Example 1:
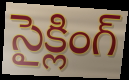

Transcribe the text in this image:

సైక్లింగ్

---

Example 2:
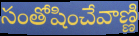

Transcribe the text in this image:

సంతోషించేవాణ్ణి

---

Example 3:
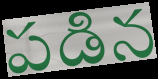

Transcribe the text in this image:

పడిన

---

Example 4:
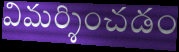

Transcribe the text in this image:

విమర్శించడం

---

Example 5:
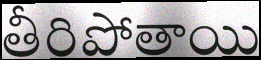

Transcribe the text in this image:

తీరిపోతాయి